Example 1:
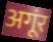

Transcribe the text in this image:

अगूंर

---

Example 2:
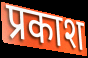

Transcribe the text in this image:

प्रकाश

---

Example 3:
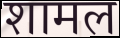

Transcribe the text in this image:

शामल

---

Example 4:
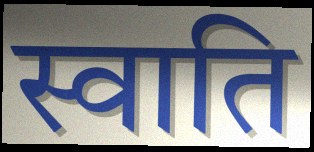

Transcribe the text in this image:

स्वाति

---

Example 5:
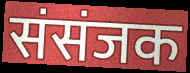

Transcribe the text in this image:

संसंजक